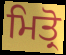
ਮਿਤ੍ਰੋ